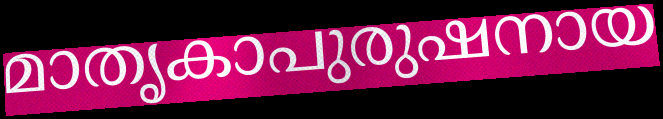
മാതൃകാപുരുഷനായ